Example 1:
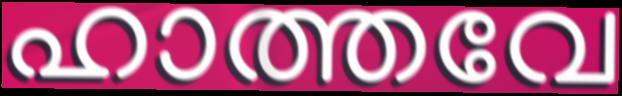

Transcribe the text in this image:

ഹാത്തവേ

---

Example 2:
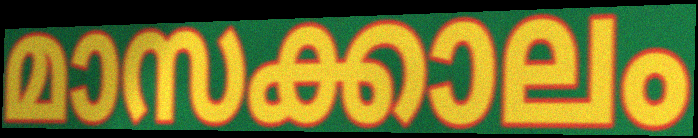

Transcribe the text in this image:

മാസക്കാലം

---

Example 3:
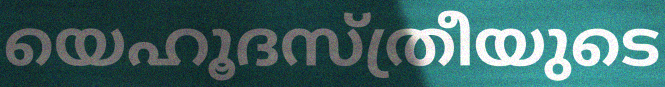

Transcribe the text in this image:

യെഹൂദസ്ത്രീയുടെ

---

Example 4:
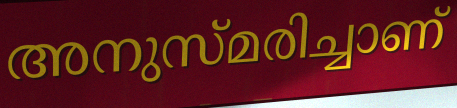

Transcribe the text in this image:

അനുസ്മരിച്ചാണ്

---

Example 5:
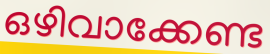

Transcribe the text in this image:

ഒഴിവാക്കേണ്ട